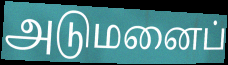
அடுமனைப்